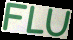
FLU